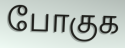
போகுக